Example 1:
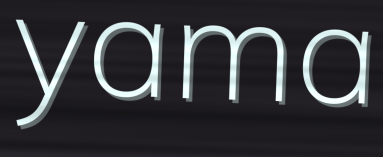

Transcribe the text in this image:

yama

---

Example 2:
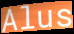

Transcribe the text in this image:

Alus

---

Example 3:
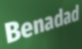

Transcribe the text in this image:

Benadad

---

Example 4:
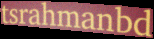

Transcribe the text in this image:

tsrahmanbd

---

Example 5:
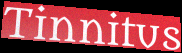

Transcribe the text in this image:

Tinnitus